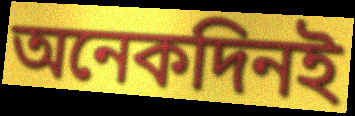
অনেকদিনই